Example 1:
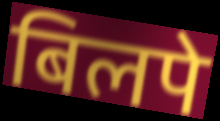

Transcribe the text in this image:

बिलपे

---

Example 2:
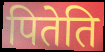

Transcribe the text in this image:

पितेति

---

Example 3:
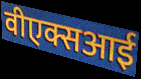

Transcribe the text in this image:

वीएक्सआई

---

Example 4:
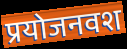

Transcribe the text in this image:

प्रयोजनवश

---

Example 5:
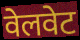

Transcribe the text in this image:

वेलवेट